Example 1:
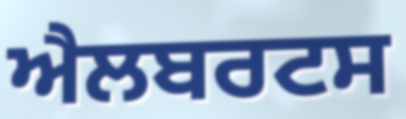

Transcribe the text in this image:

ਐਲਬਰਟਸ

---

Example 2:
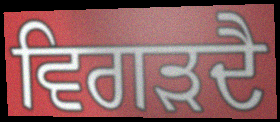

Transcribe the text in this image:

ਵਿਗੜਦੈ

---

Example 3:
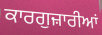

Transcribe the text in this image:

ਕਾਰਗੁਜ਼ਾਰੀਆਂ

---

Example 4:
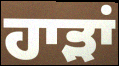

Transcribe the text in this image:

ਹਾੜਾਂ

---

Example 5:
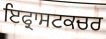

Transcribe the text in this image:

ਇਫ੍ਰਾਸਟਕਚਰ